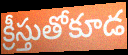
క్రీస్తుతోకూడ